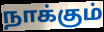
நாக்கும்